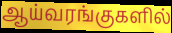
ஆய்வரங்குகளில்